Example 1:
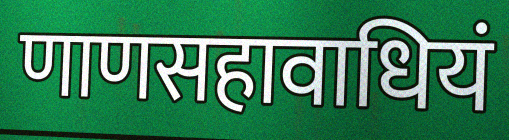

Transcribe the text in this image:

णाणसहावाधियं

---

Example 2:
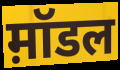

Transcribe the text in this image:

म़ॉडल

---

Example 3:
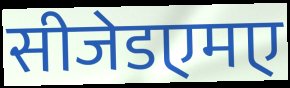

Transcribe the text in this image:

सीजेडएमए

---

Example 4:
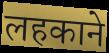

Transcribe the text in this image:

लहकाने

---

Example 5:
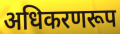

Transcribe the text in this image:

अधिकरणरूप